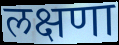
लक्षणा